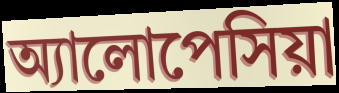
অ্যালোপেসিয়া